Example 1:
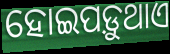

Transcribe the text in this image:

ହୋଇପଡ଼ୁଥାଏ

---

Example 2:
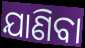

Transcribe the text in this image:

ଯାଣିବା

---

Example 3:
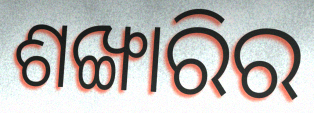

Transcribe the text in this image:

ଶଙ୍ଖାରିର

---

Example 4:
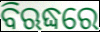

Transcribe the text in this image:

ବିଋଦ୍ଧରେ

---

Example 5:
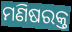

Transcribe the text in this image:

ମଣିଷରକ୍ତ